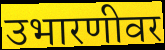
उभारणीवर